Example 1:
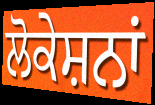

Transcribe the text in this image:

ਲੋਕੇਸ਼ਨਾਂ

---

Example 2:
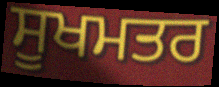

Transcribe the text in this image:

ਸੂਖਮਤਰ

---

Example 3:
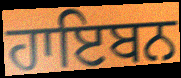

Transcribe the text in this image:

ਹਾਇਬਨ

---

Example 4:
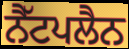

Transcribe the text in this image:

ਨੈੱਟਪਲੈਨ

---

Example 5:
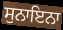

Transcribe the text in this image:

ਸੁਨਾਇਨਾ